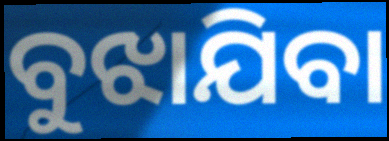
ବୁଝାଯିବା